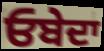
ਓਬੇਦਾ